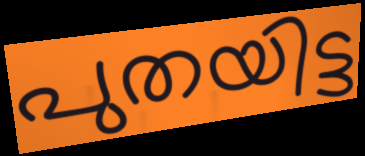
പുതയിട്ട